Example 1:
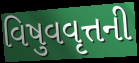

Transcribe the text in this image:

વિષુવવૃત્તની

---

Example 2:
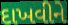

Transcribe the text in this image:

દાખવીને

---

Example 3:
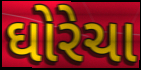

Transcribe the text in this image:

ઘોરેચા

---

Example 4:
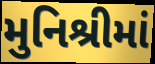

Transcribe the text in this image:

મુનિશ્રીમાં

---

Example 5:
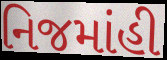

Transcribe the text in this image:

નિજમાંહી